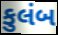
કુલંબ